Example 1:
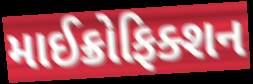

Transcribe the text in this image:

માઈક્રોફિક્શન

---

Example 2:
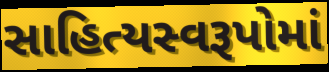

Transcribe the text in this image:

સાહિત્યસ્વરૂપોમાં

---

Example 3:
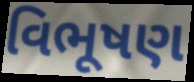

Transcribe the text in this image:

વિભૂષણ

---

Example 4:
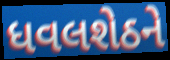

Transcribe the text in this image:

ધવલશેઠને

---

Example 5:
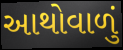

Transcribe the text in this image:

આથોવાળું